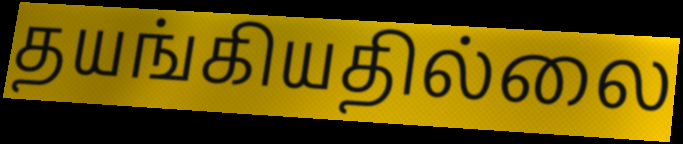
தயங்கியதில்லை